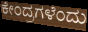
ಕೇಂದ್ರಗಳೆಂದು